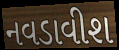
નવડાવીશ